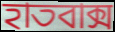
হাতবাক্স